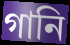
গানি